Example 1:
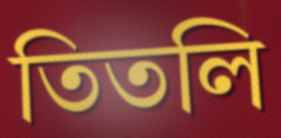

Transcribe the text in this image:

তিতলি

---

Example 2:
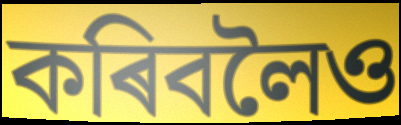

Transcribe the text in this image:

কৰিবলৈও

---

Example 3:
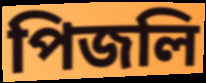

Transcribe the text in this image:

পিজলি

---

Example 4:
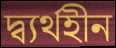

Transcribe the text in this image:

দ্ব্যৰ্থহীন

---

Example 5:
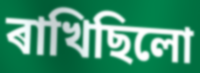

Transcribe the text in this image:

ৰাখিছিলো